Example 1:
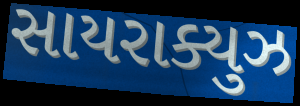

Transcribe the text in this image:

સાયરાક્યુઝ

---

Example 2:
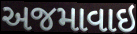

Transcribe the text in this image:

અજમાવાઇ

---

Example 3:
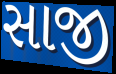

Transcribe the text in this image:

સાજી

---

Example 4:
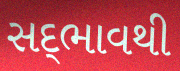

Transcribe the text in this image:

સદ્‍ભાવથી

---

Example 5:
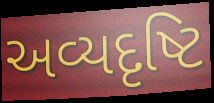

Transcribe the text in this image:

અવ્યદૃષ્ટિ